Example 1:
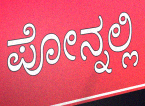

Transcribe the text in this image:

ಪೋನ್ನಲ್ಲಿ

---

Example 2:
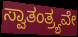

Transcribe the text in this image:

ಸ್ವಾತಂತ್ರ್ಯವೇ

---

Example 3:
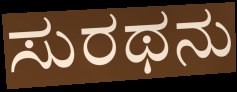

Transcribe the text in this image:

ಸುರಥನು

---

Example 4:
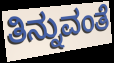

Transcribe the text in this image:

ತಿನ್ನುವಂತೆ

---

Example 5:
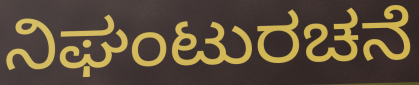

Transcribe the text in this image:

ನಿಘಂಟುರಚನೆ